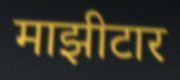
माझीटार